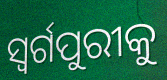
ସ୍ୱର୍ଗପୁରୀକୁ